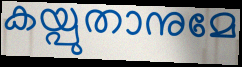
കയ്പുതാനുമേ